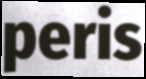
peris